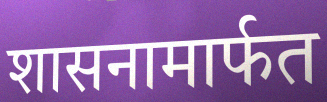
शासनामार्फत